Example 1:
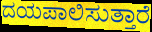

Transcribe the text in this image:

ದಯಪಾಲಿಸುತ್ತಾರೆ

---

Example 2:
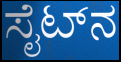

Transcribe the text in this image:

ಸೈಟ್‌ನ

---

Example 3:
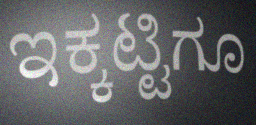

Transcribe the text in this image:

ಇಕ್ಕಟ್ಟಿಗೂ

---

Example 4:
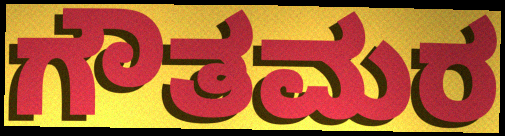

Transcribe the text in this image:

ಗೌತಮರ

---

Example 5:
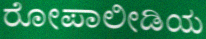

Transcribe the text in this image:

ರೋಪಾಲೀಡಿಯ